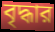
বৃদ্ধার